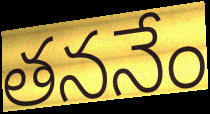
తననేం